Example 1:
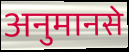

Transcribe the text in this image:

अनुमानसे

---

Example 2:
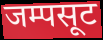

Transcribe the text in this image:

जम्पसूट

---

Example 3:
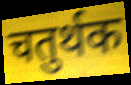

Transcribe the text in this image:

चतुर्थक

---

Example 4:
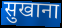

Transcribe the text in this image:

सुखाना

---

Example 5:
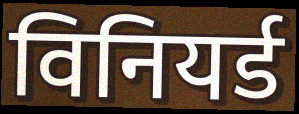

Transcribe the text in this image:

विनियर्ड